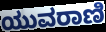
ಯುವರಾಣಿ